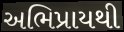
અભિપ્રાયથી